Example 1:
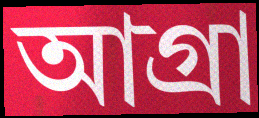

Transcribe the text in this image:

আগ্ৰা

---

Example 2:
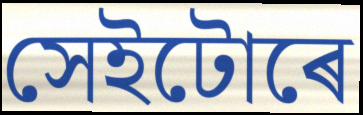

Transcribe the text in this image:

সেইটোৰে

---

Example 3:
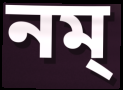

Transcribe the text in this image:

নম্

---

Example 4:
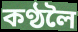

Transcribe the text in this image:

কণ্ঠলৈ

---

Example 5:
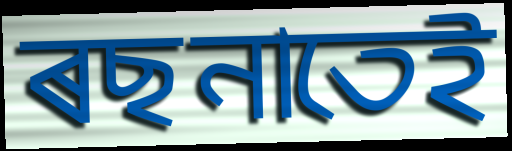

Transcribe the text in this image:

ৰছনাতেই